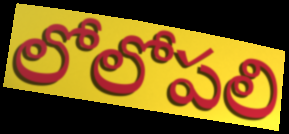
లోలోపలి